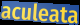
aculeata